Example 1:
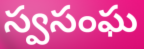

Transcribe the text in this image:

స్వసంఘ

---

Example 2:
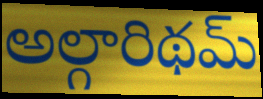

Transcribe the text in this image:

అల్గారిథమ్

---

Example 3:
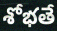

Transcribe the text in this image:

శోభతే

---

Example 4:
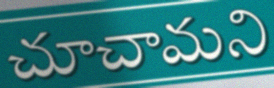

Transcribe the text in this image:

చూచామని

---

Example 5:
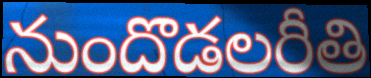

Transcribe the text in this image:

నుందొడలరీతి